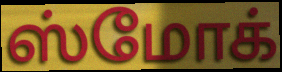
ஸ்மோக்